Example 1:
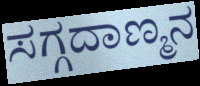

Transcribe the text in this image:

ಸಗ್ಗದಾಣ್ಮನ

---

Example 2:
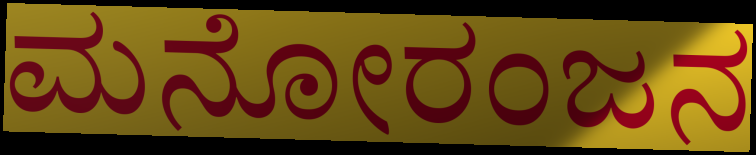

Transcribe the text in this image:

ಮನೋರಂಜನ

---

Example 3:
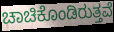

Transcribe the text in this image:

ಚಾಚಿಕೊಂಡಿರುತ್ತವೆ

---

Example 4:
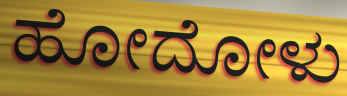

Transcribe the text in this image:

ಹೋದೋಳು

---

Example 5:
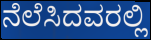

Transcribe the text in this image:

ನೆಲೆಸಿದವರಲ್ಲಿ